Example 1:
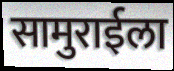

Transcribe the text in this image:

सामुराईला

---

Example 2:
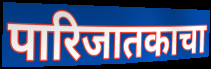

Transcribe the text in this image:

पारिजातकाचा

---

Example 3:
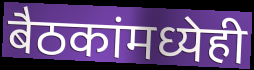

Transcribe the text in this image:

बैठकांमध्येही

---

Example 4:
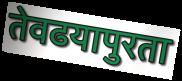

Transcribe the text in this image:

तेवढयापुरता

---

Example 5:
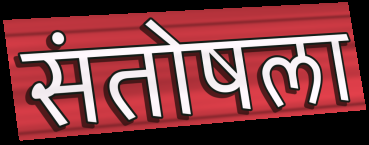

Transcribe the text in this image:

संतोषला